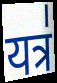
यत्र॑